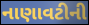
નાણાવટીની